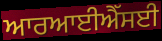
ਆਰਆਈਐੱਸਈ